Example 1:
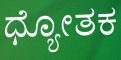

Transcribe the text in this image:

ಧ್ಯೋತಕ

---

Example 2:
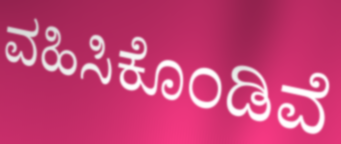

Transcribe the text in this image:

ವಹಿಸಿಕೊಂಡಿವೆ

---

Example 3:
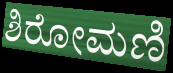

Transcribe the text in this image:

ಶಿರೋಮಣಿ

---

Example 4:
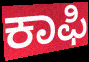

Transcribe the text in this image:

ಕಾಫಿ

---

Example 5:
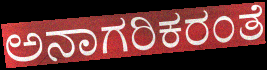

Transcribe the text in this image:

ಅನಾಗರಿಕರಂತೆ